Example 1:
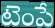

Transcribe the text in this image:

టెంపే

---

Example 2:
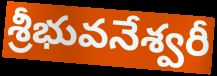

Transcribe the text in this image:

శ్రీభువనేశ్వరీ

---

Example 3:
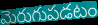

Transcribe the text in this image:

మెరుగుపడటం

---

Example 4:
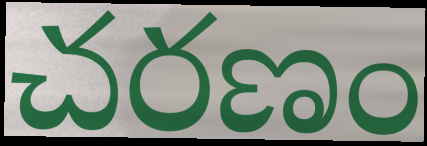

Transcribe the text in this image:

చరణం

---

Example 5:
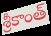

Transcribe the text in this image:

శ్రీకాంత్